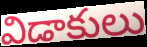
విడాకులు